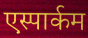
एस्पार्कम